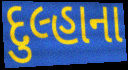
દુલ્હાના